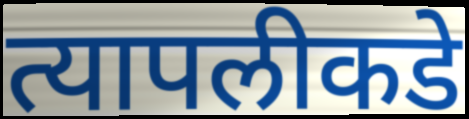
त्यापलीकडे